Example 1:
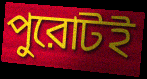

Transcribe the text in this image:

পুরোটই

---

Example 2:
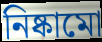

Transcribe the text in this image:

নিষ্কামো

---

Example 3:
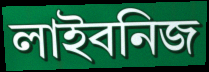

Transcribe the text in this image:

লাইবনিজ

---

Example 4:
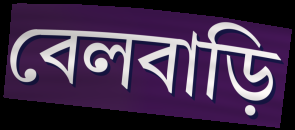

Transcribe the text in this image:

বেলবাড়ি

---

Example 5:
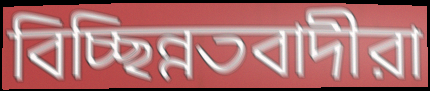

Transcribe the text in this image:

বিচ্ছিন্নতবাদীরা